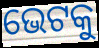
ଭେଟକୁ